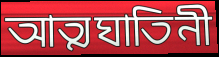
আত্মঘাতিনী